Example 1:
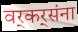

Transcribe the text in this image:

वर्कर्संना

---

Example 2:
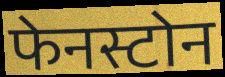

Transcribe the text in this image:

फेनस्टोन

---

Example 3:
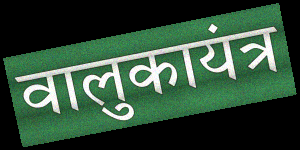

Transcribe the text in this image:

वालुकायंत्र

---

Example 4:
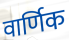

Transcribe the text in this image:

वार्णिक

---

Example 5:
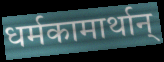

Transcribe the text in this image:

धर्मकामार्थान्